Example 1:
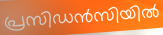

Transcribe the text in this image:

പ്രസിഡൻസിയിൽ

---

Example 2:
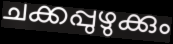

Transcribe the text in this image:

ചക്കപ്പുഴുക്കും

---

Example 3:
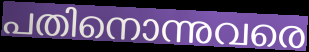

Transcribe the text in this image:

പതിനൊന്നുവരെ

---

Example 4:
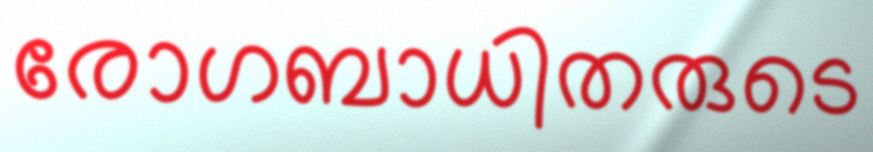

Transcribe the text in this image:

രോഗബാധിതരുടെ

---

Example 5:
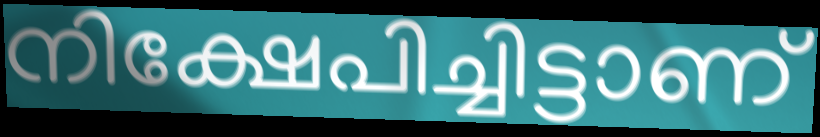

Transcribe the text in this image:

നിക്ഷേപിച്ചിട്ടാണ്